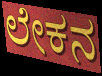
ಲೇಕನ